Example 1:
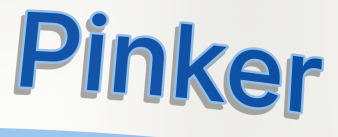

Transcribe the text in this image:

Pinker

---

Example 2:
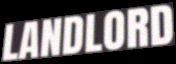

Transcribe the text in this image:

LANDLORD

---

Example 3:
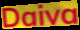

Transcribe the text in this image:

Daiva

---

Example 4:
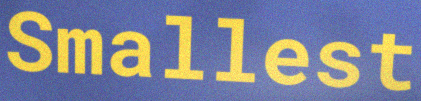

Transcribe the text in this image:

Smallest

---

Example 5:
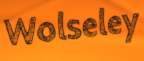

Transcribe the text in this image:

Wolseley